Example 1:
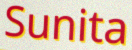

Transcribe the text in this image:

Sunita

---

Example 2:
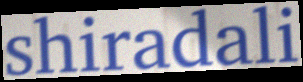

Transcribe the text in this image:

shiradali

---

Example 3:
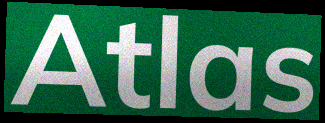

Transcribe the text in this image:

Atlas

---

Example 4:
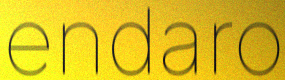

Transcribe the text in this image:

endaro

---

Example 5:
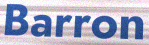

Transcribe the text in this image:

Barron